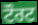
ਟੌਰਟ